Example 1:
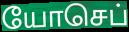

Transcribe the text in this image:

யோசெப்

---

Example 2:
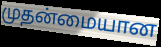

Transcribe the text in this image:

முதன்மையான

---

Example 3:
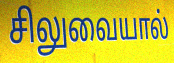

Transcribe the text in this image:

சிலுவையால்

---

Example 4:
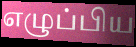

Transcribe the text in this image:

எழுப்பிய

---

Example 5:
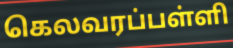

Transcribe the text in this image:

கெலவரப்பள்ளி